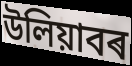
উলিয়াবৰ